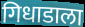
गिधाडाला